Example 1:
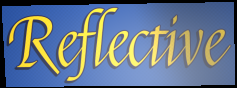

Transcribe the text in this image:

Reflective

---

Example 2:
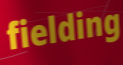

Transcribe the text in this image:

fielding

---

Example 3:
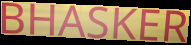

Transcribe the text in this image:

BHASKER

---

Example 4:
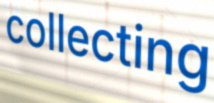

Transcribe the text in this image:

collecting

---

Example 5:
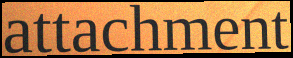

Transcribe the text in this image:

attachment